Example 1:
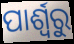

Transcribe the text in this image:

ପାର୍ଶ୍ଵରୁ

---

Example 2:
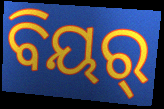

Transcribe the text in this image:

ବିୟର୍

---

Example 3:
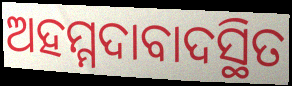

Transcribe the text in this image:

ଅହମ୍ମଦାବାଦସ୍ଥିତ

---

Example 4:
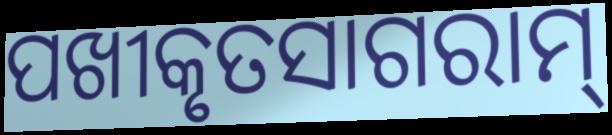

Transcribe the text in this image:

ପଖୀକୃତସାଗରାମ୍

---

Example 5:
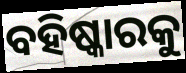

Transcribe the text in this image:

ବହିଷ୍କାରକୁ